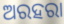
ଅରହରା